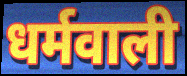
धर्मवाली